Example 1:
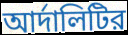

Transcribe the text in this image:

আর্দালিটির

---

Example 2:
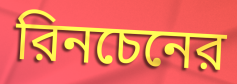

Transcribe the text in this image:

রিনচেনের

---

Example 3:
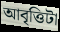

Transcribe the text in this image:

আবৃত্তিটা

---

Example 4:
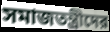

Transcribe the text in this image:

সমাজতন্ত্রীদের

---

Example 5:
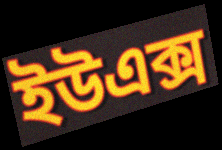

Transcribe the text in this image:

ইউএক্স